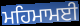
ਮਹਿਮਾਮਈ